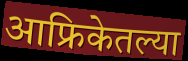
आफ्रिकेतल्या